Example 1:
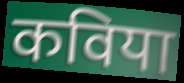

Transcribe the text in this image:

कविया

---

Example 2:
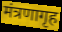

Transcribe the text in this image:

मंत्रणागृह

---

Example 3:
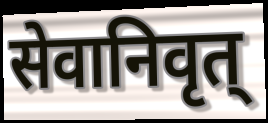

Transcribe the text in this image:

सेवानिवृत्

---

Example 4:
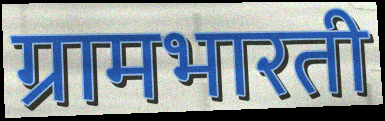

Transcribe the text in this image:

ग्रामभारती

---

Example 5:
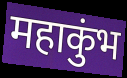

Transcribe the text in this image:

महाकुंभ